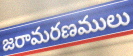
జరామరణములు